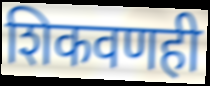
शिकवणही